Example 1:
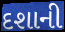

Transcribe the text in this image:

દશાની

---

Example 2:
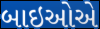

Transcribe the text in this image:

બાઇઓએ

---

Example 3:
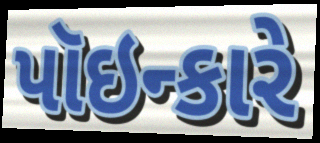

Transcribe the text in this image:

પૉઇન્કારે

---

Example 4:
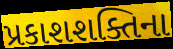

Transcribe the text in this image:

પ્રકાશશક્તિના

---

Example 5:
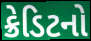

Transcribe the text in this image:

ક્રેડિટનો